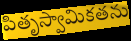
పితృస్వామికతను